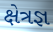
ક્ષેત્રજ્ઞ